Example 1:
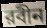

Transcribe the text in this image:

রবীন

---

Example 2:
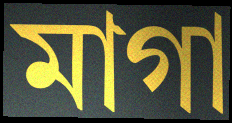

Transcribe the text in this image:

মাগা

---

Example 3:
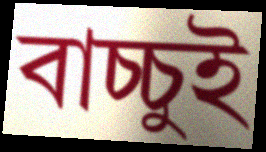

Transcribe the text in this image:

বাচ্চুই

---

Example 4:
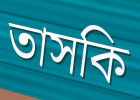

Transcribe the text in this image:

তাসকি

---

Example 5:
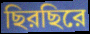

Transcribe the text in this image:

ছিরছিরে